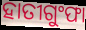
ହାତୀଗୁଂଫା